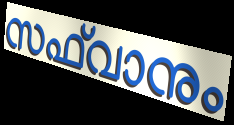
സഫ്‌വാനും